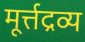
मूर्त्तद्रव्य